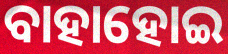
ବାହାହୋଇ